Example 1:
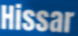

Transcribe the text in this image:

Hissar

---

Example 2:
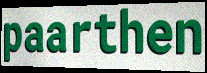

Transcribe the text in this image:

paarthen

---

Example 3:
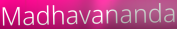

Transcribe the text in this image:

Madhavananda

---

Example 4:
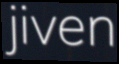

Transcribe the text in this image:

jiven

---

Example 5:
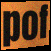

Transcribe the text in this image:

pof